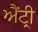
ਐਂਟ੍ਰੀ